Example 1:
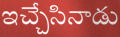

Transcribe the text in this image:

ఇచ్చేసినాడు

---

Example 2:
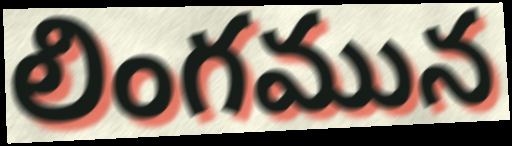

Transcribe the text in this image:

లింగమున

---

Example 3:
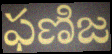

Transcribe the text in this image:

ఫణిజ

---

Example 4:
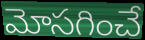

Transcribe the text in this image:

మోసగించే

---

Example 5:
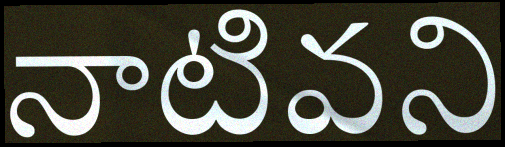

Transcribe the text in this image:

నాటివని